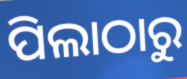
ପିଲାଠାରୁ